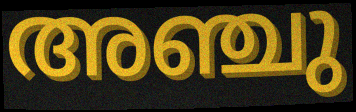
അഞ്ചു